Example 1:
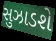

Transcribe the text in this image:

સુઝાડશે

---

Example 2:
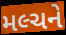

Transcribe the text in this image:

મલ્ચને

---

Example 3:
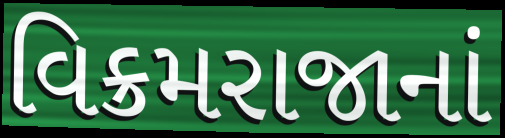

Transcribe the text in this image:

વિક્રમરાજાનાં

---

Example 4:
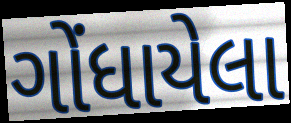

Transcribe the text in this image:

ગોંધાયેલા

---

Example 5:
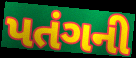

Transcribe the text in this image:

પતંગની